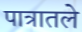
पात्रातले